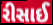
રીસાઈ